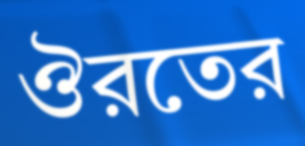
ঔরতের